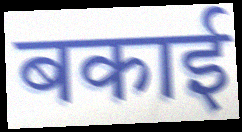
बकाई